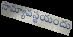
సామ్యావస్థయందు